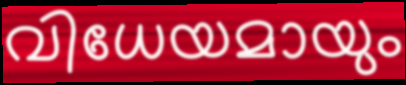
വിധേയമായും